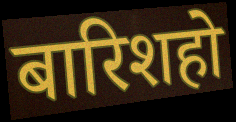
बारिशहो